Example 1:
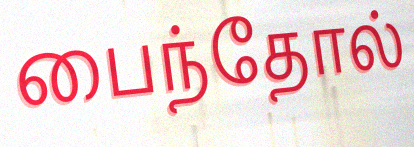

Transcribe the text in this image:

பைந்தோல்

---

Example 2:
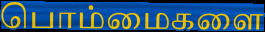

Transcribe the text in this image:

பொம்மைகளை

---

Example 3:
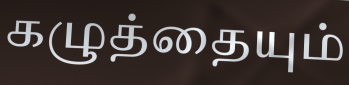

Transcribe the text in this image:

கழுத்தையும்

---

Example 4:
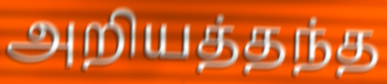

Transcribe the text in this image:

அறியத்தந்த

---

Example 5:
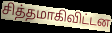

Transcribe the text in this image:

சித்தமாகிவிட்டன